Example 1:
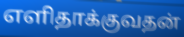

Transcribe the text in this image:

எளிதாக்குவதன்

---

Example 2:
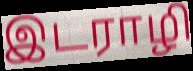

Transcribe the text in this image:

இடராழி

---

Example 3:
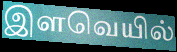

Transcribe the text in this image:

இளவெயில்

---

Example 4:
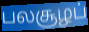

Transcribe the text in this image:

பலசூழப்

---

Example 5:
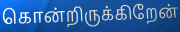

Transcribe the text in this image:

கொன்றிருக்கிறேன்